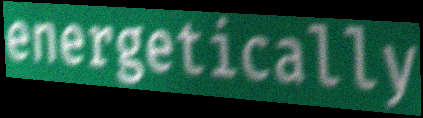
energetically